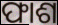
ଫାଶ